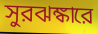
সুরঝঙ্কারে